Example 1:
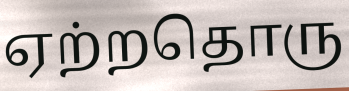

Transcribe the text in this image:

ஏற்றதொரு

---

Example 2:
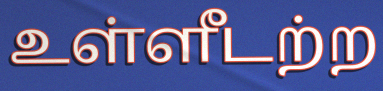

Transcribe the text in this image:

உள்ளீடற்ற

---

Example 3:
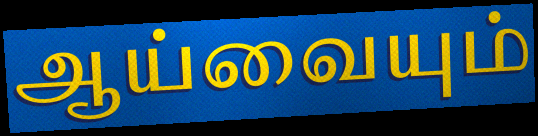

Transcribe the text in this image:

ஆய்வையும்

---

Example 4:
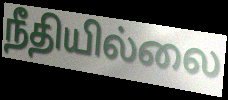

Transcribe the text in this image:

நீதியில்லை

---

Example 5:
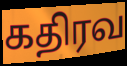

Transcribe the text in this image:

கதிரவ